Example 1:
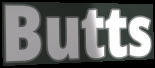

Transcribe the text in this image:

Butts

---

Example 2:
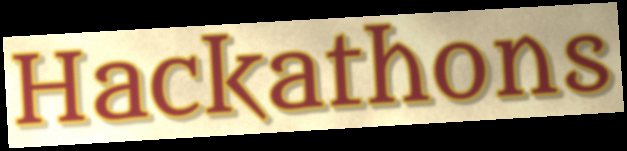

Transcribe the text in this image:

Hackathons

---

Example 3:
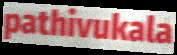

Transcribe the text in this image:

pathivukala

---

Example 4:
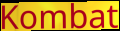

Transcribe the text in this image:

Kombat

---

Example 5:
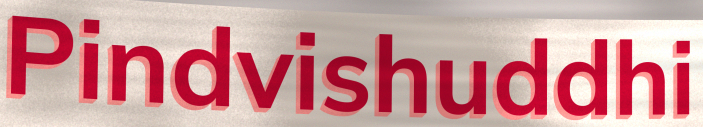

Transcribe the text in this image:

Pindvishuddhi